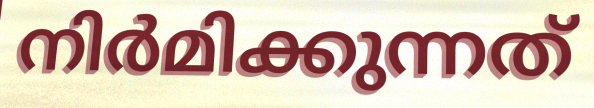
നിർമിക്കുന്നത്